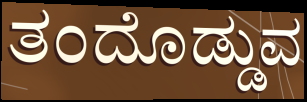
ತಂದೊಡ್ಡುವ